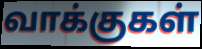
வாக்குகள்